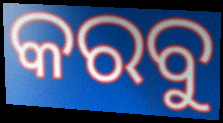
କରବୁ